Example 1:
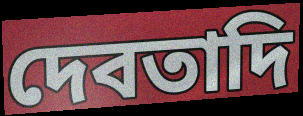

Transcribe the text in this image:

দেবতাদি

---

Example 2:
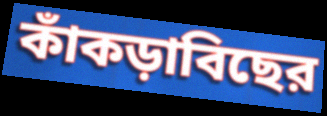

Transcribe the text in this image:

কাঁকড়াবিছের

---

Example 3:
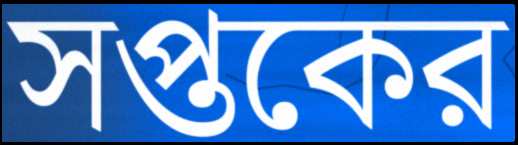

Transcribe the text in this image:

সপ্তকের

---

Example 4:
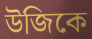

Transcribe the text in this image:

উজিকে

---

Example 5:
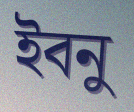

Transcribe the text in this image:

ইবনু